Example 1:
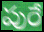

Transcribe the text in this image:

పురే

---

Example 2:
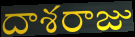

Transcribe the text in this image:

దాశరాజు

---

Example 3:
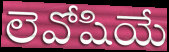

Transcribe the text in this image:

లెవోషియే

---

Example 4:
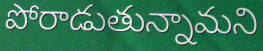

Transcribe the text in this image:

పోరాడుతున్నామని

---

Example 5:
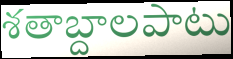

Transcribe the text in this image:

శతాబ్దాలపాటు